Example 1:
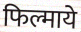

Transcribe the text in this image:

फिल्माये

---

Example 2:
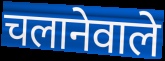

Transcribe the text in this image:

चलानेवाले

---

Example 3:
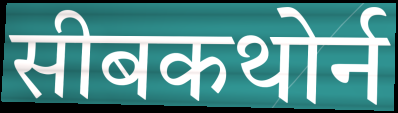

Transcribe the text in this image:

सीबकथोर्न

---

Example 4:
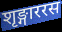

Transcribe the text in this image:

शृङ्गाररस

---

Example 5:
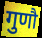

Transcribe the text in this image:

गुणौ